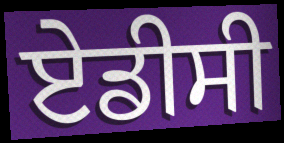
ਏਡੀਸੀ